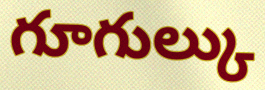
గూగుల్కు